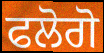
ਫਲੋਗੋ